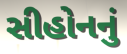
સીહોનનું